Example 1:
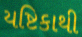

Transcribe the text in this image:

યષ્ટિકાથી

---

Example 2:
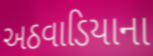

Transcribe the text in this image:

અઠવાડિયાના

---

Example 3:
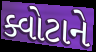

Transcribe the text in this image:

ક્વોટાને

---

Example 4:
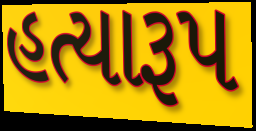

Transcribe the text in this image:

હત્યારૂપ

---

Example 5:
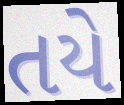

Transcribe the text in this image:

તયે